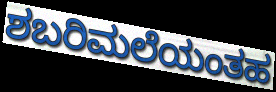
ಶಬರಿಮಲೆಯಂತಹ